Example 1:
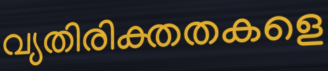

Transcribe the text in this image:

വ്യതിരിക്തതകളെ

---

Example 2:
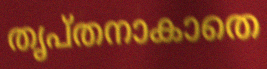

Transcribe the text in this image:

തൃപ്തനാകാതെ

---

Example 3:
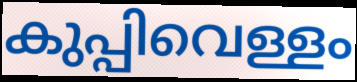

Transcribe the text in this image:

കുപ്പിവെള്ളം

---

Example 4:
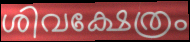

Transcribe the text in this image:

ശിവക്ഷേത്രം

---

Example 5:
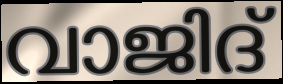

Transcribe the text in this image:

വാജിദ്